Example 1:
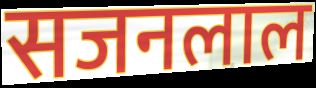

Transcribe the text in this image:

सजनलाल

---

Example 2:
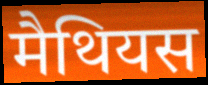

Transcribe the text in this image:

मैथियस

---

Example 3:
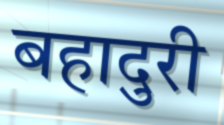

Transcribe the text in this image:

बहादुरी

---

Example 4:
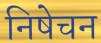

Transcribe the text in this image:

निषेचन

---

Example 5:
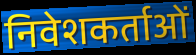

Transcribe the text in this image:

निवेशकर्ताओं